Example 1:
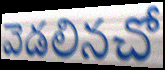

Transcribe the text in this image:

వెడలినచో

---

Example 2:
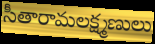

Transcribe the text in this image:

సీతారామలక్ష్మణులు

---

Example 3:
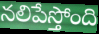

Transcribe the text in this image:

నలిపేస్తోంది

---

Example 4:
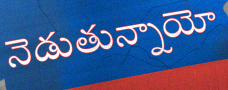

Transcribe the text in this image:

నెడుతున్నాయో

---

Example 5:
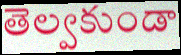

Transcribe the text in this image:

తెల్వకుండా